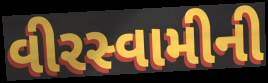
વીરસ્વામીની